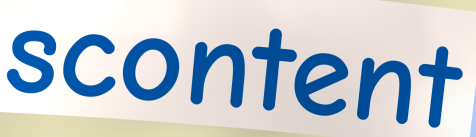
scontent